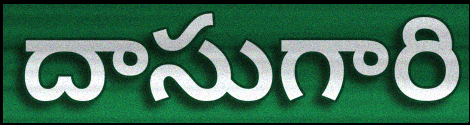
దాసుగారి